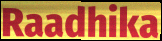
Raadhika